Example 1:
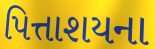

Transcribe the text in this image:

પિત્તાશયના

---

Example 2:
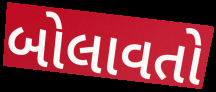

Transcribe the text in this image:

બોલાવતો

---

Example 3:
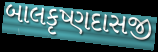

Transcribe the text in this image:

બાલકૃષ્ણદાસજી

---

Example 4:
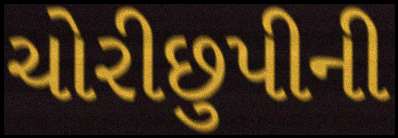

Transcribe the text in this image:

ચોરીછુપીની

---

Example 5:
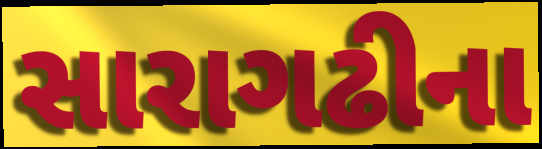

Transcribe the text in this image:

સારાગઢીના